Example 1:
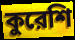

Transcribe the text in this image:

কুরেশি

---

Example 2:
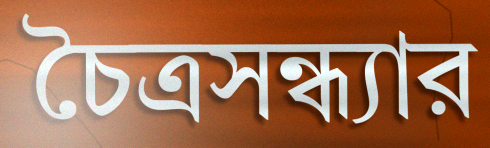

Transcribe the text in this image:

চৈত্রসন্ধ্যার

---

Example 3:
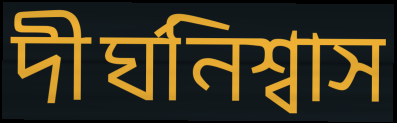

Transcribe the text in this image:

দীর্ঘনিশ্বাস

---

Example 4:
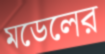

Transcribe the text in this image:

মডেলের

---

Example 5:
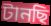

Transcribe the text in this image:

টানছি